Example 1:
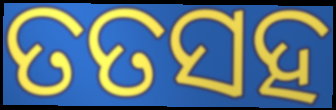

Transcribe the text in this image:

ତତସହ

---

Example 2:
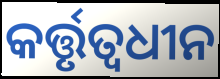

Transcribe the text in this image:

କର୍ତ୍ତୃତ୍ୱଧୀନ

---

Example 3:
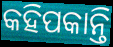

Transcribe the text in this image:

କହିପକାନ୍ତି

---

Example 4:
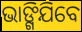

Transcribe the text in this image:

ଭାଙ୍ଗିଯିବେ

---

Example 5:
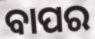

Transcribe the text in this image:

ବାପର